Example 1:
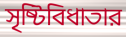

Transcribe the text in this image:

সৃষ্টিবিধাতার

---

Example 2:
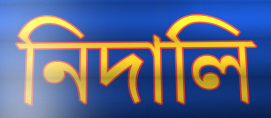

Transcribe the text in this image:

নিদালি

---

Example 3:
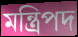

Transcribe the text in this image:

মন্ত্রিপদ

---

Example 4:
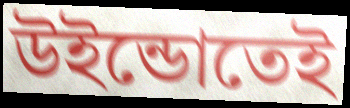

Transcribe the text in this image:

উইন্ডোতেই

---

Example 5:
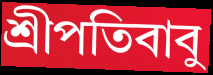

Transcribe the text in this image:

শ্রীপতিবাবু